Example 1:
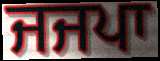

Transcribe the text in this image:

ਜਜਪਾ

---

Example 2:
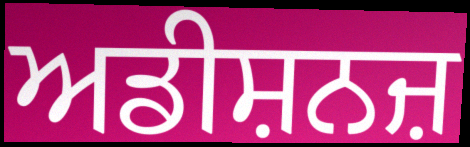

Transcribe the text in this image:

ਅਡੀਸ਼ਨਜ਼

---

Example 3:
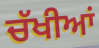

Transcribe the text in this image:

ਚੱਖੀਆਂ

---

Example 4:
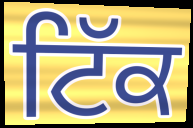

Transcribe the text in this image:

ਟਿੱਕ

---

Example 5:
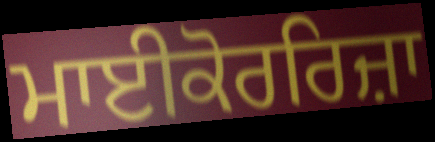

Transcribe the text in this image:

ਮਾਈਕੋਰਰਿਜ਼ਾ